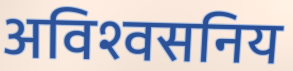
अविश्वसनिय